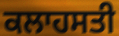
ਕਲਾਹਸਤੀ